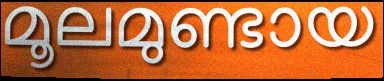
മൂലമുണ്ടായ